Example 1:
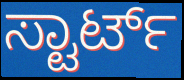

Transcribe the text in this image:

ಸ್ಟಾರ್ಟ್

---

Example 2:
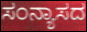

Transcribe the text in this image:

ಸಂನ್ಯಾಸದ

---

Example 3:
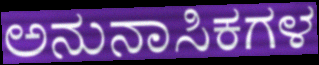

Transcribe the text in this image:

ಅನುನಾಸಿಕಗಳ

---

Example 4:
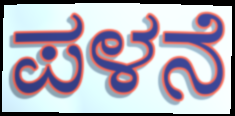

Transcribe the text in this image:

ಪಳನೆ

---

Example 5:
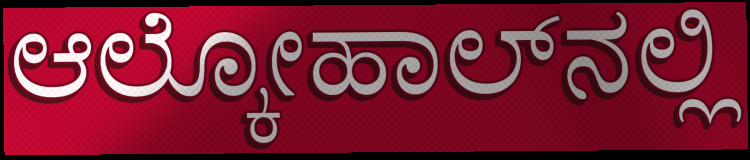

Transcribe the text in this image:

ಆಲ್ಕೋಹಾಲ್‌ನಲ್ಲಿ